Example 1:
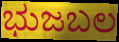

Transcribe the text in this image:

ಭುಜಬಲ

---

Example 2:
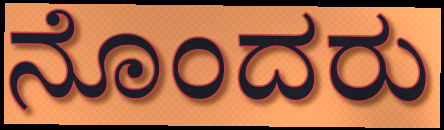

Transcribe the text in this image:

ನೊಂದರು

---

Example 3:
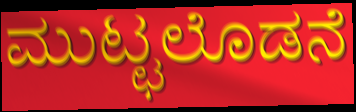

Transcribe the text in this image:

ಮುಟ್ಟಲೊಡನೆ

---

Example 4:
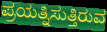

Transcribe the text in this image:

ಪ್ರಯತ್ನಿಸುತ್ತಿರುವ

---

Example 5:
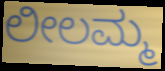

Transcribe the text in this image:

ಲೀಲಮ್ಮ